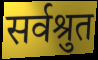
सर्वश्रुत